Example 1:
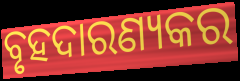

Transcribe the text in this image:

ବୃହଦାରଣ୍ୟକର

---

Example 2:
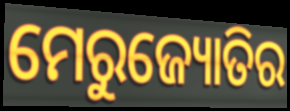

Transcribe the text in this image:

ମେରୁଜ୍ୟୋତିର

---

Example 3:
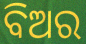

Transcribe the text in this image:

ବିଅର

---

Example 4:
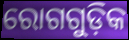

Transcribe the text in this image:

ରୋଗଗୁଡ଼ିକ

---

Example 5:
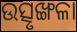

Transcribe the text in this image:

ଉତ୍ସୃଙ୍ଖଳା